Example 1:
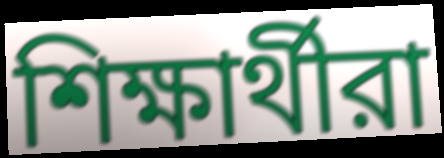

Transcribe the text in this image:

শিক্ষার্থীরা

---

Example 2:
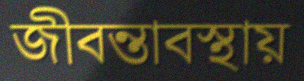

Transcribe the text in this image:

জীবন্তাবস্থায়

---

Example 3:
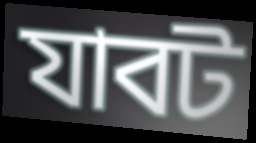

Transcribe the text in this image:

যাবট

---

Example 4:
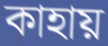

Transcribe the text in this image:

কাহায়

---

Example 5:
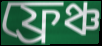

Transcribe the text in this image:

ফ্রেঞ্চ